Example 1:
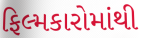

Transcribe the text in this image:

ફિલ્મકારોમાંથી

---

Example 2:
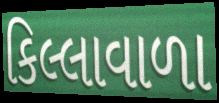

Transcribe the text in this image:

કિલ્લાવાળા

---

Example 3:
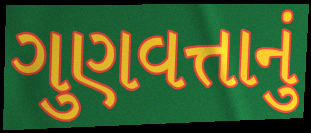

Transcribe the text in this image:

ગુણવત્તાનું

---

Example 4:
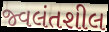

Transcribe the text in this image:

જ્વલંતશીલ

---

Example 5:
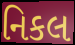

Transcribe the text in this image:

નિકલ